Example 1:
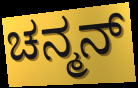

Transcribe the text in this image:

ಚನ್ಮನ್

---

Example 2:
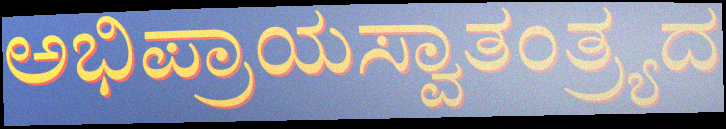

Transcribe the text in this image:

ಅಭಿಪ್ರಾಯಸ್ವಾತಂತ್ರ್ಯದ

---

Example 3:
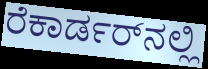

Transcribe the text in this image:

ರೆಕಾರ್ಡರ್‌ನಲ್ಲಿ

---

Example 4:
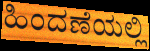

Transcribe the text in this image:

ಹಿಂದಣೆಯಲ್ಲಿ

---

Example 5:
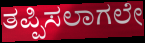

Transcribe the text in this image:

ತಪ್ಪಿಸಲಾಗಲೇ